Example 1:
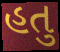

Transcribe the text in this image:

હતુ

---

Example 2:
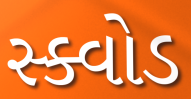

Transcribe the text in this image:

સ્ક્વોડ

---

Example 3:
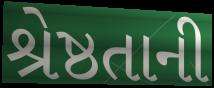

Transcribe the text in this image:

શ્રેષ્ઠતાની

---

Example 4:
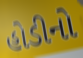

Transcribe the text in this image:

હોડીનો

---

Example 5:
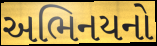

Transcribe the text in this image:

અભિનયનો